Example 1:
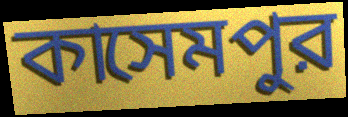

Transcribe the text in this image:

কাসেমপুর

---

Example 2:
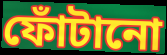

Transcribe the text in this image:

ফোঁটানো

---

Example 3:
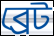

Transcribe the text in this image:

ব্রেট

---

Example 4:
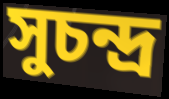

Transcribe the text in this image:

সুচন্দ্র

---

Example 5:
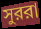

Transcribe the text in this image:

সুররা